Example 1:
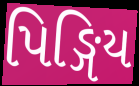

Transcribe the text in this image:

પિઙ્ગિય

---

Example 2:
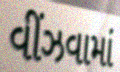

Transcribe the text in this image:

વીંઝવામાં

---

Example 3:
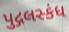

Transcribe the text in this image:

પુદ્ગલસ્કંધ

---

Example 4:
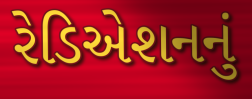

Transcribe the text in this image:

રેડિએશનનું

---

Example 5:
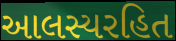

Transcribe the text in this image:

આલસ્યરહિત